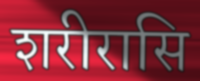
शरीरासि